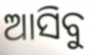
ଆସିବୁ